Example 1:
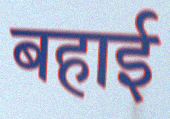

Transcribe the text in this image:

बहाई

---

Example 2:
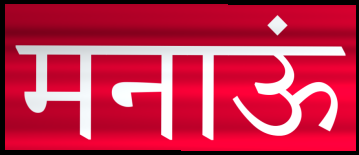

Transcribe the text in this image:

मनाऊं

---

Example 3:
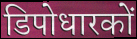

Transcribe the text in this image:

डिपोधारकों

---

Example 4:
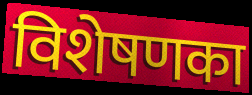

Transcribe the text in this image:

विशेषणका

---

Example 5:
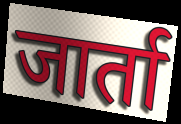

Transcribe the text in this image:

जार्ता